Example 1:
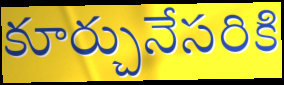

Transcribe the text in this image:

కూర్చునేసరికి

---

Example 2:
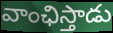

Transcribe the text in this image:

వాంఛిస్తాడు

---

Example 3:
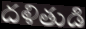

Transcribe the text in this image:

దళితుడి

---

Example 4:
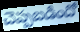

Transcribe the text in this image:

చెప్పబడిందో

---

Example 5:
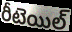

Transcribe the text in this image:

రీటెయిల్